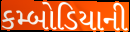
કમ્બોડિયાની